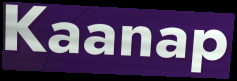
Kaanap